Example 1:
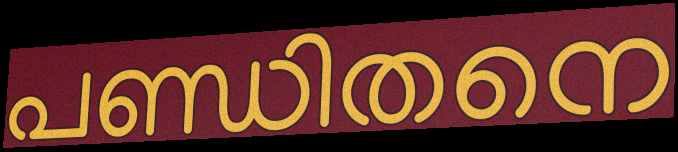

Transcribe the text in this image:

പണ്ഡിതനെ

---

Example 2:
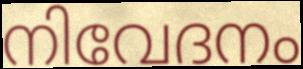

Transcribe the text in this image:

നിവേദനം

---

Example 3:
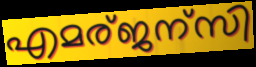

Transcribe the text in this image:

എമര്ജന്സി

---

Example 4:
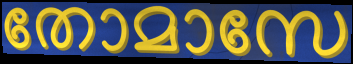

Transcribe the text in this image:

തോമാസേ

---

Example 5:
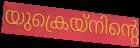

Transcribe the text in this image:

യുക്രെയ്നിന്റെ